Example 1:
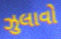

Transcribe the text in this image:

ઝુલાવો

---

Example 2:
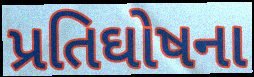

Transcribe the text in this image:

પ્રતિઘોષના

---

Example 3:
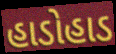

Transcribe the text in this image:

હાડોહાડ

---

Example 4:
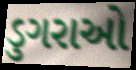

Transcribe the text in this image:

ડુગરાઓ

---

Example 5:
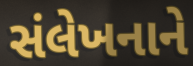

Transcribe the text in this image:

સંલેખનાને